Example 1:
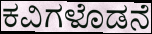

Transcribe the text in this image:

ಕವಿಗಳೊಡನೆ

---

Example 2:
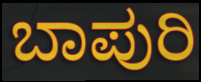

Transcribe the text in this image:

ಬಾಪುರಿ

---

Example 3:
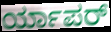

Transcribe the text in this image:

ರ್ಯಾಪರ್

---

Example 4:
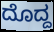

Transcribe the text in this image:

ದೊದ್ದ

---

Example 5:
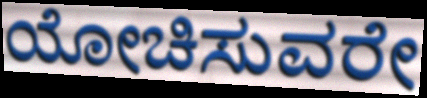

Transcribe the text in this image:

ಯೋಚಿಸುವರೇ